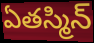
ఏతస్మిన్